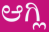
ಆಗ್ಲಿ